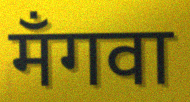
मँगवा